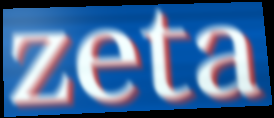
zeta